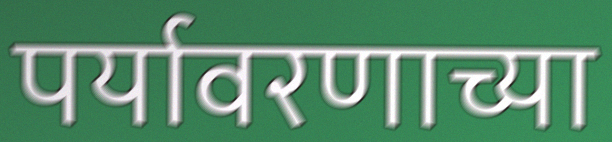
पर्यावरणाच्या